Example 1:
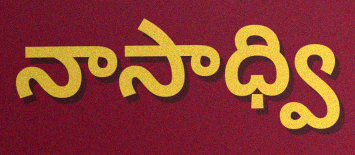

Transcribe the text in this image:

నాసాధ్వి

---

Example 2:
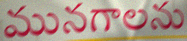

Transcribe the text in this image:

మునగాలను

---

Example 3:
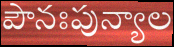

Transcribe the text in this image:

పౌనఃపున్యాల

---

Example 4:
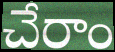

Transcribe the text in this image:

చేరాం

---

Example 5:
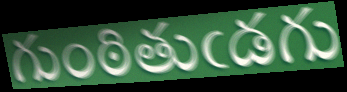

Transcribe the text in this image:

గుంఠితుఁడగు